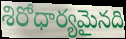
శిరోధార్యమైనది